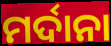
ମର୍ଦାନା